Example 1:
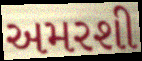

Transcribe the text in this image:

અમરશી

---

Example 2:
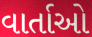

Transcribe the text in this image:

વાર્તાઓ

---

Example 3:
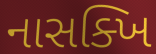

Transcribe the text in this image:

નાસક્ખિ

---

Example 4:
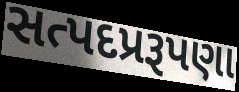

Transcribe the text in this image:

સત્પદપ્રરૂપણા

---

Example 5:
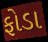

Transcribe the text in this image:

ફોડા